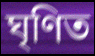
ঘৃণিত